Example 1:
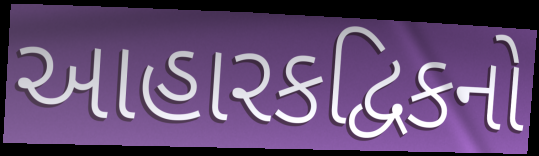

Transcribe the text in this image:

આહારકદ્વિકનો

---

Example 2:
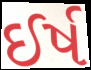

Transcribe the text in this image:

ઈર્ષ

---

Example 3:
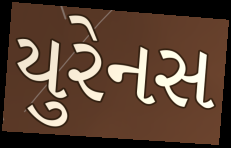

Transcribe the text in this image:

યુરેનસ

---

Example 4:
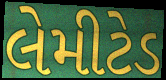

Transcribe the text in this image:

લેમીટેડ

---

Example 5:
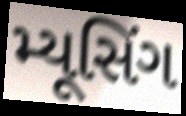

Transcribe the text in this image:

મ્યૂસિંગ